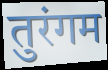
तुरंगम